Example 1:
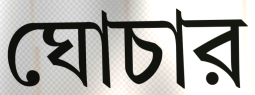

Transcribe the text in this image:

ঘোচার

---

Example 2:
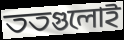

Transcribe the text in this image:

ততগুলোই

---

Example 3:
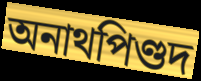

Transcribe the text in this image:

অনাথপিণ্ডদ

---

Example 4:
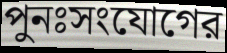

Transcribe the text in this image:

পুনঃসংযোগের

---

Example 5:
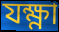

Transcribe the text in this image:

যক্ষ্ণা